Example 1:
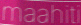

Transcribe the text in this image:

maahiti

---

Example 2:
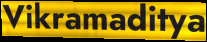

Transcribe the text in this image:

Vikramaditya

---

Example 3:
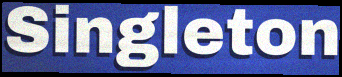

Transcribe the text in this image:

Singleton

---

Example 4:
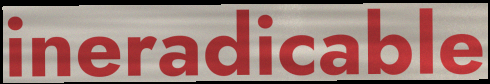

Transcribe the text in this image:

ineradicable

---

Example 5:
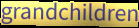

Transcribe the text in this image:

grandchildren